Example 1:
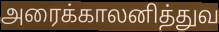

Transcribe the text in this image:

அரைக்காலனித்துவ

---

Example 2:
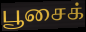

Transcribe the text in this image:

பூசைக்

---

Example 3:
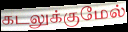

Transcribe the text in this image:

கடலுக்குமேல்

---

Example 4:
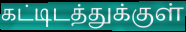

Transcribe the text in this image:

கட்டிடத்துக்குள்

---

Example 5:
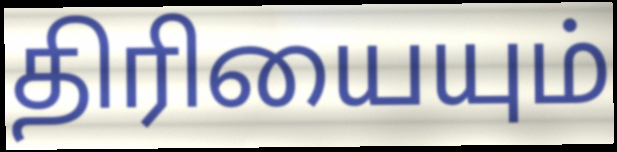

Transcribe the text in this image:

திரியையும்